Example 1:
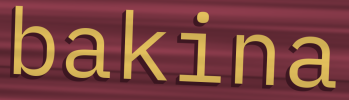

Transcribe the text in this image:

bakina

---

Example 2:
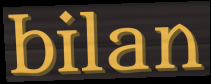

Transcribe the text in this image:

bilan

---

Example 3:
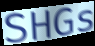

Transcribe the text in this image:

SHGs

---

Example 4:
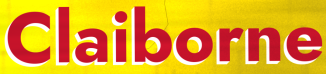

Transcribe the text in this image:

Claiborne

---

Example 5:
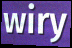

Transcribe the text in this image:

wiry